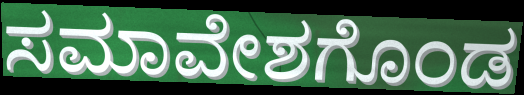
ಸಮಾವೇಶಗೊಂಡ